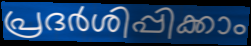
പ്രദർശിപ്പിക്കാം